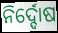
ନିର୍ଦ୍ଦୋଷ